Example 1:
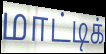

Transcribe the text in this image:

மாட்டிக்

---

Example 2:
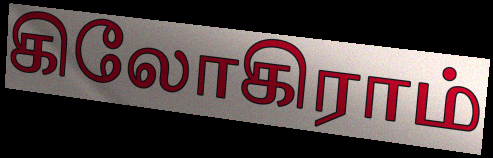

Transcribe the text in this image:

கிலோகிராம்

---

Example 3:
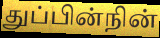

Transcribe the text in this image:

துப்பின்நின்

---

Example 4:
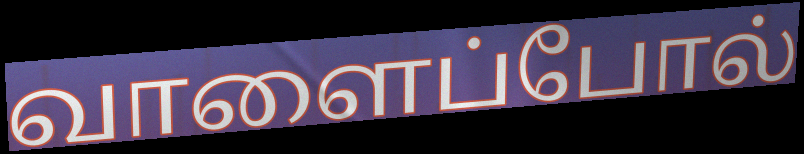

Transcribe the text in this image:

வாளைப்போல்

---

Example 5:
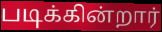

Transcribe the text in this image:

படிக்கின்றார்